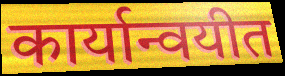
कार्यान्वयीत